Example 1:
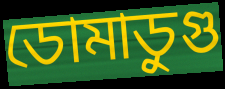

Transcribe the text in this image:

ডোমাডুগু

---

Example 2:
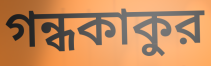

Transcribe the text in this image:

গন্ধকাকুর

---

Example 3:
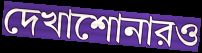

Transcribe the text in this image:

দেখাশোনারও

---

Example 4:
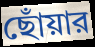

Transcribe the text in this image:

ছোঁয়ার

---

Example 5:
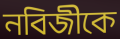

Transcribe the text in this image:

নবিজীকে